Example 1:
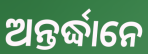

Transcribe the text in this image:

ଅନ୍ତର୍ଦ୍ଧାନେ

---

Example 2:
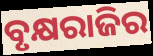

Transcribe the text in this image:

ବୃକ୍ଷରାଜିର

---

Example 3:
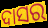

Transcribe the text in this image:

ଦାସର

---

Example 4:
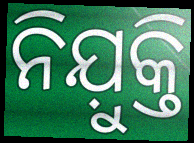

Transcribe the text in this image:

ନିଯ଼ୁକ୍ତି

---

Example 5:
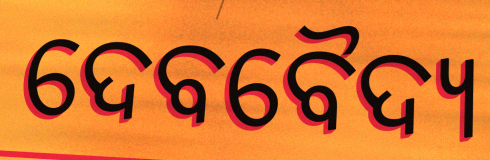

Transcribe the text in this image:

ଦେବବୈଦ୍ୟ